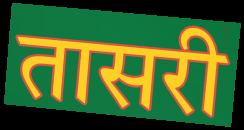
तासरी